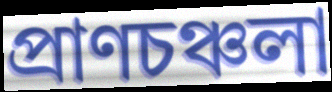
প্রাণচঞ্চলা